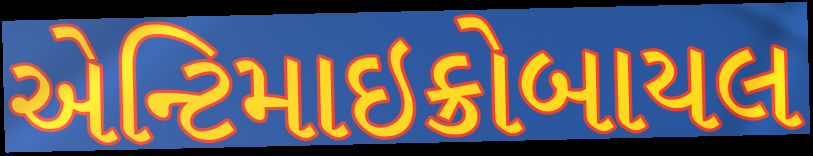
એન્ટિમાઇક્રોબાયલ